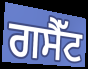
ਗਸੈੱਟ